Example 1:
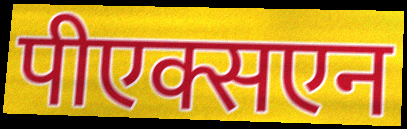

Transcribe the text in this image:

पीएक्सएन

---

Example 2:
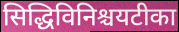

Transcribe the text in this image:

सिद्धिविनिश्चयटीका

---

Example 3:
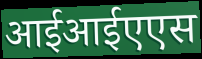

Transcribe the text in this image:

आईआईएएस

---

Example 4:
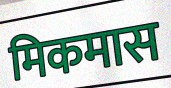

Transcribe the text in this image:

मिकमास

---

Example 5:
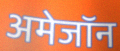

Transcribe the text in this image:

अमेजॉन